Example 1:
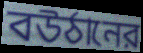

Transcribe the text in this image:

বউঠানের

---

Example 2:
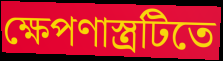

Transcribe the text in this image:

ক্ষেপণাস্ত্রটিতে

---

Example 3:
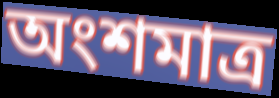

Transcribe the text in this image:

অংশমাত্র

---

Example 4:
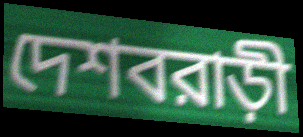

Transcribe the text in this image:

দেশবরাড়ী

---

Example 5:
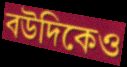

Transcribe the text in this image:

বউদিকেও